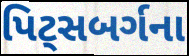
પિટ્સબર્ગના